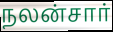
நலன்சார்